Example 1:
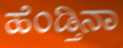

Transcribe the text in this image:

ಹೆಂಡ್ತಿನಾ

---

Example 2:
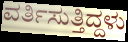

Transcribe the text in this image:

ವರ್ತಿಸುತ್ತಿದ್ದಳು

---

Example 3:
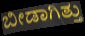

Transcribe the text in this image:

ಬೀಡಾಗಿತ್ತು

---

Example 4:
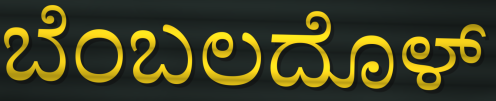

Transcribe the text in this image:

ಬೆಂಬಲದೊಳ್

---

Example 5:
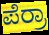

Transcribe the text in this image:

ಪೆರ್ರಾ